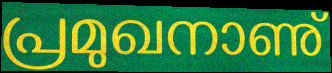
പ്രമുഖനാണു്